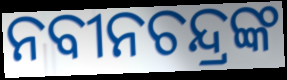
ନବୀନଚନ୍ଦ୍ରଙ୍କ